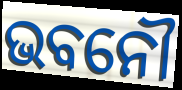
ଭବନୌ